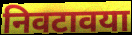
निवटावया